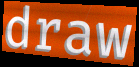
draw